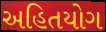
અહિતયોગ